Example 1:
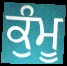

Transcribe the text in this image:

ਕੁੰਮੂ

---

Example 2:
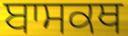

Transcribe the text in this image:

ਬਾਸਕਥ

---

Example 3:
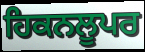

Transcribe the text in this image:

ਹਿਕਨਲੂਪਰ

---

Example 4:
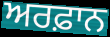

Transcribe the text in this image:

ਅਰਫ਼ਾਨ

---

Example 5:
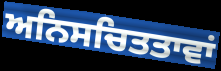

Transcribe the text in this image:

ਅਨਿਸਚਿਤਤਾਵਾਂ